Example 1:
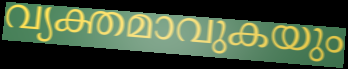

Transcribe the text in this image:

വ്യക്തമാവുകയും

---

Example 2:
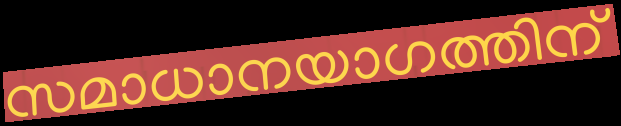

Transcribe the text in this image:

സമാധാനയാഗത്തിന്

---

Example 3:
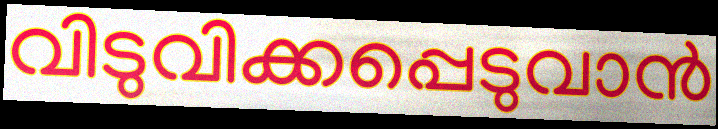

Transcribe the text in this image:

വിടുവിക്കപ്പെടുവാൻ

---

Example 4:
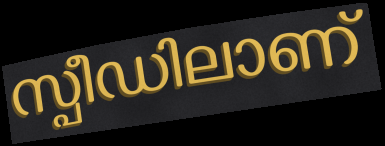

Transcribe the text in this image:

സ്പീഡിലാണ്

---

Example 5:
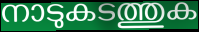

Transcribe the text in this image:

നാടുകടത്തുക